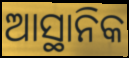
ଆସ୍ଥାନିକ